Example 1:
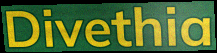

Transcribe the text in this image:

Divethia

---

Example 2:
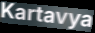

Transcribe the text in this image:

Kartavya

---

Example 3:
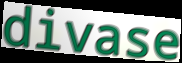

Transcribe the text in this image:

divase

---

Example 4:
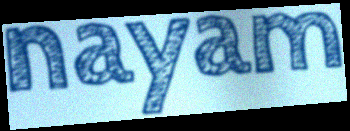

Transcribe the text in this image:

nayam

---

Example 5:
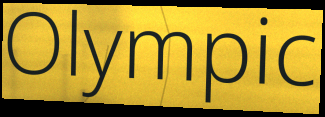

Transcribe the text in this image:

Olympic